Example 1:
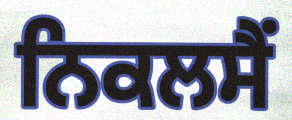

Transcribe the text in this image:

ਨਿਕਲਸੈਂ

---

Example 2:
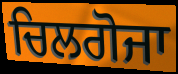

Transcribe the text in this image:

ਚਿਲਗੋਜਾ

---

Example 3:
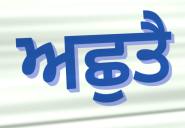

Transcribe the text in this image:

ਅਛੁਤੈ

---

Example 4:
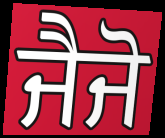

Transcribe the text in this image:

ਜੈਜੋ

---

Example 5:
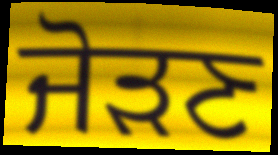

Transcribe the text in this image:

ਜੋੜਣ